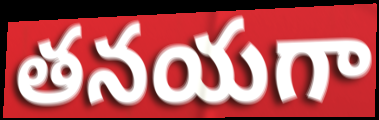
తనయగా